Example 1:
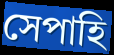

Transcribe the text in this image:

সেপাহি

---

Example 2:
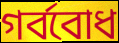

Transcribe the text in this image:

গর্ববোধ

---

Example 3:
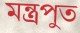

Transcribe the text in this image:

মন্ত্রপুত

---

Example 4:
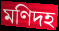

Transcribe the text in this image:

মণিদহ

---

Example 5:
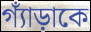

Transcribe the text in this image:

গ্যাঁড়াকে